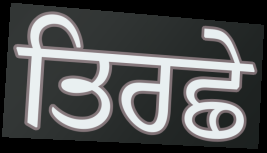
ਤਿਰਛੇ